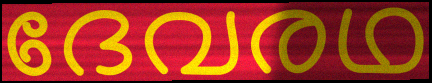
ദേവരഥ